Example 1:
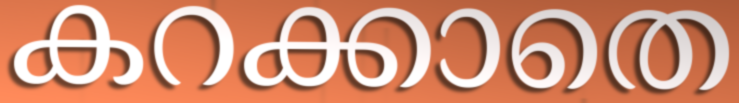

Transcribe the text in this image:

കറക്കാതെ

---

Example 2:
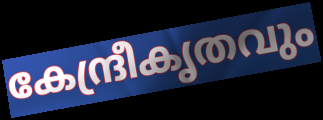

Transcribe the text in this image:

കേന്ദ്രീകൃതവും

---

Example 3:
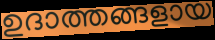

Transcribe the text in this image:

ഉദാത്തങ്ങളായ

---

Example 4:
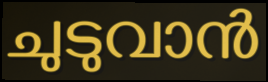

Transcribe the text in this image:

ചുടുവാൻ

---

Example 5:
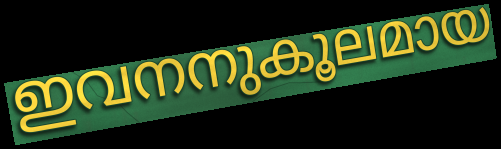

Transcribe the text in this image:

ഇവനനുകൂലമായ